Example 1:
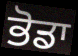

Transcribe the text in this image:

ਭੋਡਾ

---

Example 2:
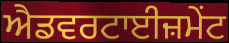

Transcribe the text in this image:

ਐਡਵਰਟਾਈਜ਼ਮੇਂਟ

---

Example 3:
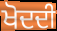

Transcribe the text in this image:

ਖੋਦਦੀ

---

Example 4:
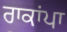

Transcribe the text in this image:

ਰਾਕਾਂਪਾ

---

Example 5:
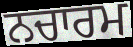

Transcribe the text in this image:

ਨਚਾਰਮ